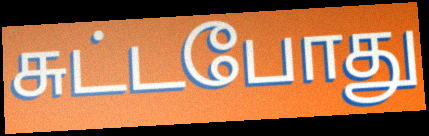
சுட்டபோது